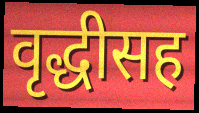
वृद्धीसह